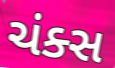
ચંક્સ